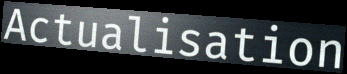
Actualisation